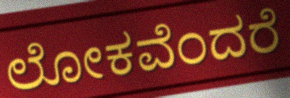
ಲೋಕವೆಂದರೆ